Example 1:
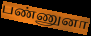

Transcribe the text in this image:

பண்ணுனா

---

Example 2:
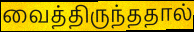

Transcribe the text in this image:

வைத்திருந்ததால்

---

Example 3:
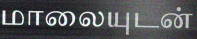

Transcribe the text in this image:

மாலையுடன்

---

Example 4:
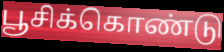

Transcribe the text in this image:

பூசிக்கொண்டு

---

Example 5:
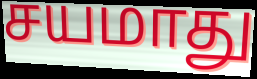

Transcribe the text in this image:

சயமாது